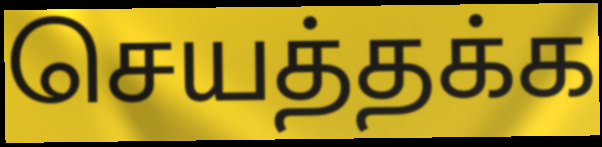
செயத்தக்க